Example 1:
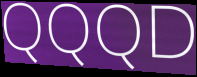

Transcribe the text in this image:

QQQD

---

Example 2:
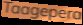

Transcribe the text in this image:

Taagepera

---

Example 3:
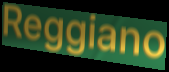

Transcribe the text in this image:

Reggiano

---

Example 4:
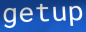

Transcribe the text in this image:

getup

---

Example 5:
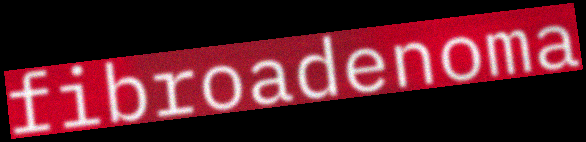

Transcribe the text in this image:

fibroadenoma